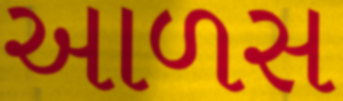
આળસ